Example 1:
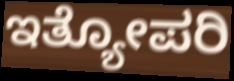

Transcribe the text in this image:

ಇತ್ಯೋಪರಿ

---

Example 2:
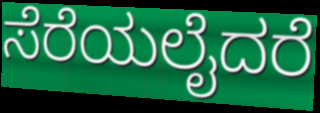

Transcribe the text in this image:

ಸೆರೆಯಲೈದರೆ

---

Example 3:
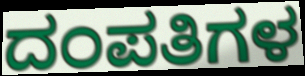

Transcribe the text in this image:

ದಂಪತಿಗಳ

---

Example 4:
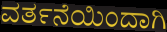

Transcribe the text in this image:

ವರ್ತನೆಯಿಂದಾಗಿ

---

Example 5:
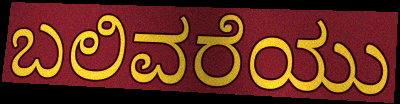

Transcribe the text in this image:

ಬಲಿವರೆಯು